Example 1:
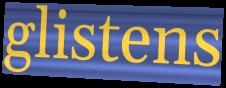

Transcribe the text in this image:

glistens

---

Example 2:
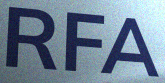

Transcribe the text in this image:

RFA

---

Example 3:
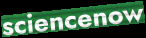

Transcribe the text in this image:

sciencenow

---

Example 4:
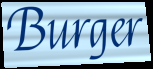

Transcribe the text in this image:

Burger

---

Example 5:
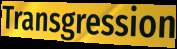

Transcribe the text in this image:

Transgression